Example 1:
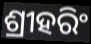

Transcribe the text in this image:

ଶ୍ରୀହରିଂ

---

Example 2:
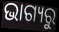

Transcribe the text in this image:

ଭାଗ୍ୟରୁ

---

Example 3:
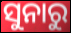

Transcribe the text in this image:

ସୁନାରୁ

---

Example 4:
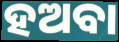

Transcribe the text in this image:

ହଅବା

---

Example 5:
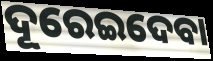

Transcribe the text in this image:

ଦୂରେଇଦେବା